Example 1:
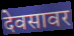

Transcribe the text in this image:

देवसावर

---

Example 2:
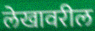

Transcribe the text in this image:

लेखावरील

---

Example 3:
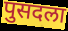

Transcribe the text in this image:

पुसदला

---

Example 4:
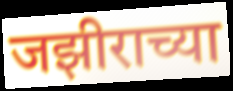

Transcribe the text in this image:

जझीराच्या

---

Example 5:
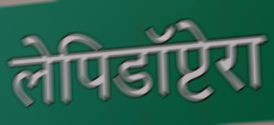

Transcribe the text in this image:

लेपिडॉप्टेरा